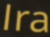
Ira